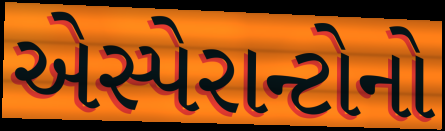
એસ્પેરાન્ટોનો